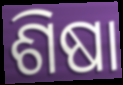
ଶିଷା